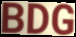
BDG